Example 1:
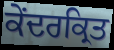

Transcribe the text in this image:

ਕੇਂਦਰਕ੍ਰਿਤ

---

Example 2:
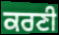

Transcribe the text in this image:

ਕਰਣੀ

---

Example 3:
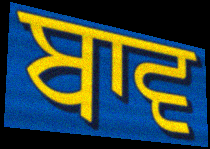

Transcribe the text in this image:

ਬਾਵ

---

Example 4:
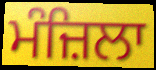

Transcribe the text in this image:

ਮੰਜ਼ਿਲਾ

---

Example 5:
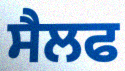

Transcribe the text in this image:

ਸੈਲਫ